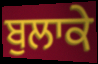
ਬੁਲਾਕੇ